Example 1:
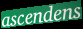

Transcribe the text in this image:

ascendens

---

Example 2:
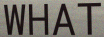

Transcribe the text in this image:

WHAT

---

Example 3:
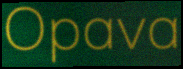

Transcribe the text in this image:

Opava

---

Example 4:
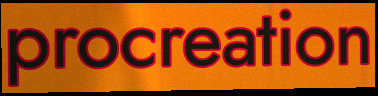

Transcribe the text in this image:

procreation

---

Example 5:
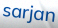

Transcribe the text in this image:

sarjan